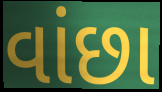
વાંછા